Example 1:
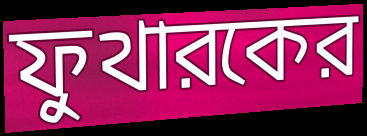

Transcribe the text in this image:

ফুথারকের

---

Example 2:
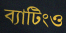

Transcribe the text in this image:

ব্যাটিংও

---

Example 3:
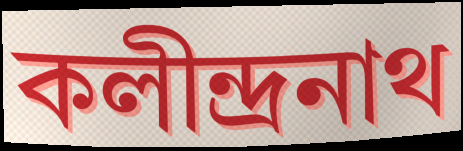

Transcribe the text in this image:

কলীন্দ্রনাথ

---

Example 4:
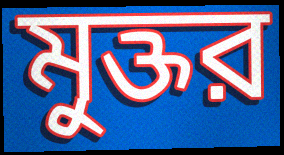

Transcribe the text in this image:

মুক্তর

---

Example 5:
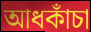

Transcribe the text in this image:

আধকাঁচা